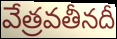
వేత్రవతీనదీ